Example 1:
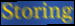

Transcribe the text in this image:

Storing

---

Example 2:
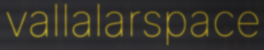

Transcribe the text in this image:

vallalarspace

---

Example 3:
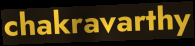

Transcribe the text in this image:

chakravarthy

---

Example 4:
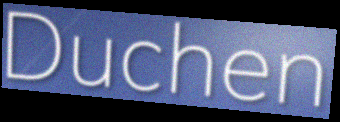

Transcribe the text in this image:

Duchen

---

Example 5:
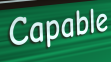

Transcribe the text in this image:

Capable